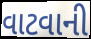
વાટવાની